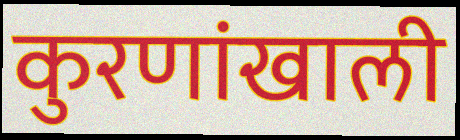
कुरणांखाली